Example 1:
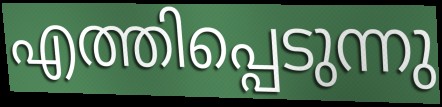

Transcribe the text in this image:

എത്തിപ്പെടുന്നു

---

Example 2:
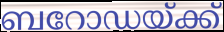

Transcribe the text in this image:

ബറോഡയ്ക്ക്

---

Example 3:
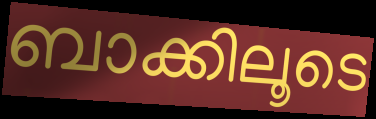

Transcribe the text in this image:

ബാക്കിലൂടെ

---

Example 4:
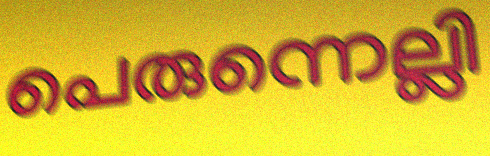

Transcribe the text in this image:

പെരുന്നെല്ലി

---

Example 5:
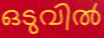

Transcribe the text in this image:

ഒടുവിൽ